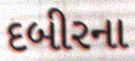
દબીરના